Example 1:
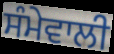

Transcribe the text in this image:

ਸੰਮੇਵਾਲੀ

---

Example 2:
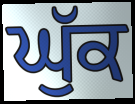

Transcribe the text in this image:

ਘੁੱਕ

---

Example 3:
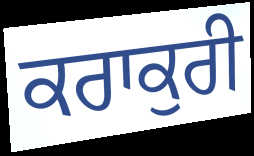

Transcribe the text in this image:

ਕਰਾਕੁਰੀ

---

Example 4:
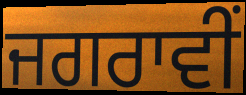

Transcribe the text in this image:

ਜਗਰਾਵੀਂ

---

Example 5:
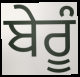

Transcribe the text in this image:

ਬੇਰੂੰ